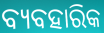
ବ୍ଯବହାରିକ